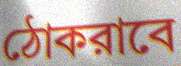
ঠোকরাবে